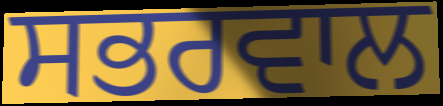
ਸਭਰਵਾਲ